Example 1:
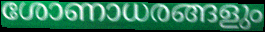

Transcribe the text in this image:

ശോണാധരങ്ങളും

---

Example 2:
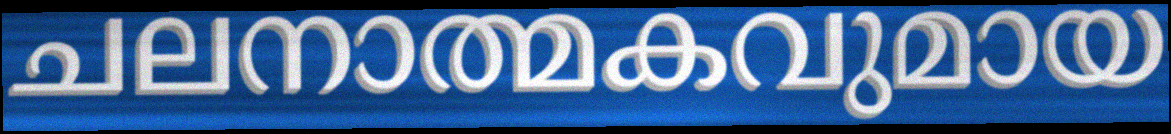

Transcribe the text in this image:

ചലനാത്മകവുമായ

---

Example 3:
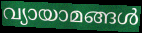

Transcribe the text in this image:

വ്യായാമങ്ങൾ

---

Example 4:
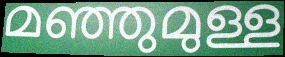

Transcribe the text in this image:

മഞ്ഞുമുള്ള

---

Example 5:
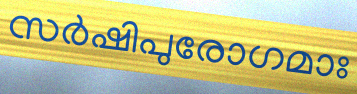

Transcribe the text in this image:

സർഷിപുരോഗമാഃ